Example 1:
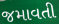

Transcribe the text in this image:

જમાવતી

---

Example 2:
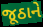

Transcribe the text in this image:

જૂઠાને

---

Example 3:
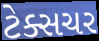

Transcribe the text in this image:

ટેક્સચર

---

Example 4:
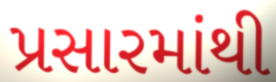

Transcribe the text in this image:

પ્રસારમાંથી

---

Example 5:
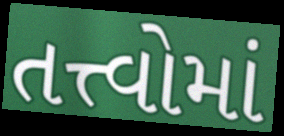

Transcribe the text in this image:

તત્ત્વોમાં